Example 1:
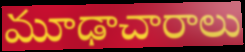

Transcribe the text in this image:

మూఢాచారాలు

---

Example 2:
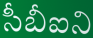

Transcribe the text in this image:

సీబీఐని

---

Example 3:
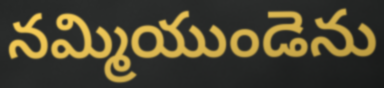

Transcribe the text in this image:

నమ్మియుండెను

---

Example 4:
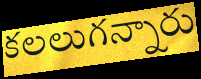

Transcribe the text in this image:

కలలుగన్నారు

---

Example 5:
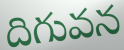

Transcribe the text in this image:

దిగువన